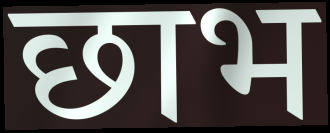
छाभ